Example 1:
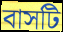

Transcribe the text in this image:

বাসটি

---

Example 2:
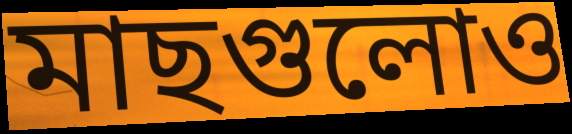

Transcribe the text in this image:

মাছগুলোও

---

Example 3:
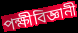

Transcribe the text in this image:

পক্ষীবিজ্ঞানী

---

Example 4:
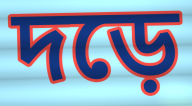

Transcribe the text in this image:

দড়ে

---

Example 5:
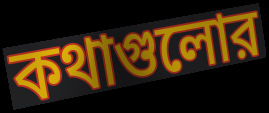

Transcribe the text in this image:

কথাগুলোর